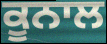
ਕੂਨਾਲ